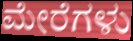
ಮೇರೆಗಳು